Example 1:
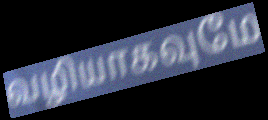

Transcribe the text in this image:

வழியாகவுமே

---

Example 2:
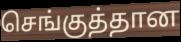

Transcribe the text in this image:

செங்குத்தான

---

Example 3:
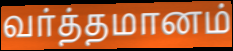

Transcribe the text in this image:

வர்த்தமானம்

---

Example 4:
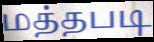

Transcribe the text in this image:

மத்தபடி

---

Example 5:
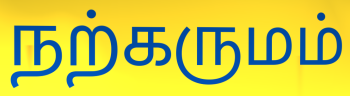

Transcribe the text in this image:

நற்கருமம்